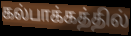
கல்பாக்கத்தில்